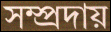
সম্প্রদায়